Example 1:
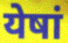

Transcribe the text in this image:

येषां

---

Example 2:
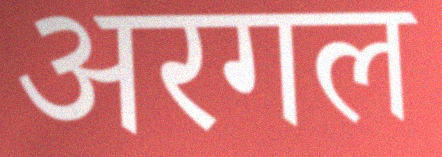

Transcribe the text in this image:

अरगल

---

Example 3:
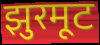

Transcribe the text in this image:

झुरमूट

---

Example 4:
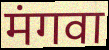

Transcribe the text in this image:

मंगवा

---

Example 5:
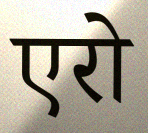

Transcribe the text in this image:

एरो